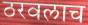
ठरवलाच